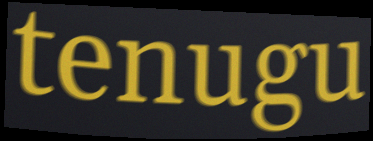
tenugu